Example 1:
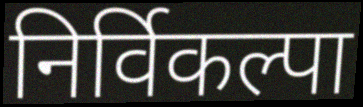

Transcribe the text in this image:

निर्विकल्पा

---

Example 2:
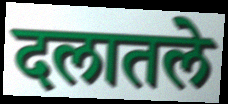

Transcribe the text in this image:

दलातले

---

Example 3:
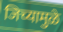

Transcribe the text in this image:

जिच्यामुळे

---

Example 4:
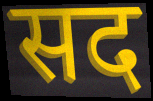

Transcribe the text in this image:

सद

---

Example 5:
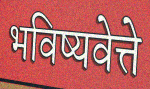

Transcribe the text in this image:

भविष्यवेत्ते